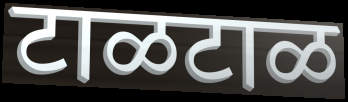
टाळटाळ